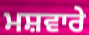
ਮਸ਼ਵਾਰੇ